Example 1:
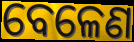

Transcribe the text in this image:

ବେଳେଣ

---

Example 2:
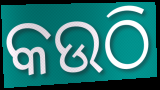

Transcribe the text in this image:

କଉଠି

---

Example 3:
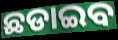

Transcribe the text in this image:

ଛଡାଇବ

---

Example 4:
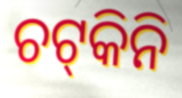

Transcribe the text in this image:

ଚଟ୍‍କିନି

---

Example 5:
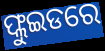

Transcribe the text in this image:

ଫ୍ଲୁଇଡରେ